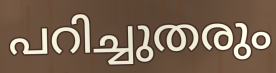
പറിച്ചുതരും